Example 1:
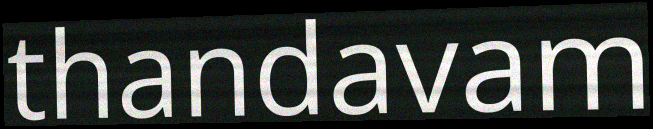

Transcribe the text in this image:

thandavam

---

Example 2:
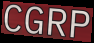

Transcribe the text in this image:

CGRP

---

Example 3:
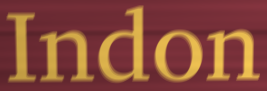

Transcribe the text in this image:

Indon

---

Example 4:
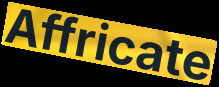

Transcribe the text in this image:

Affricate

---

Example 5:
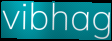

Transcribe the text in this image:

vibhag